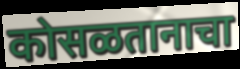
कोसळतानाचा